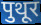
पुथूर